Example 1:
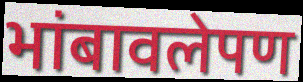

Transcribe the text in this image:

भांबावलेपण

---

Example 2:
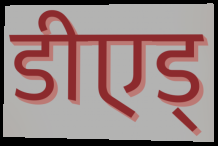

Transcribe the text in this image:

डीएड्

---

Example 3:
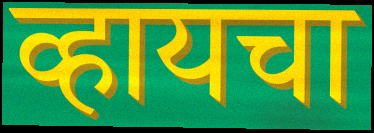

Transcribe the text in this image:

व्हायचा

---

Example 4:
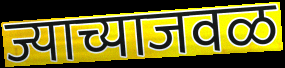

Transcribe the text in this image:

ज्याच्याजवळ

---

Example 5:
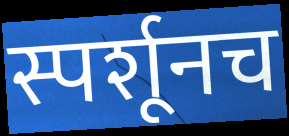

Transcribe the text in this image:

स्पर्शूनच